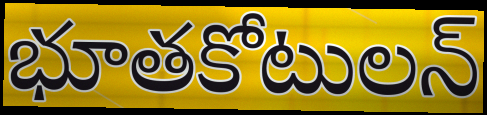
భూతకోటులన్